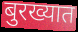
बुरख्यात